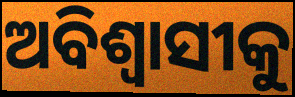
ଅବିଶ୍ୱାସୀକୁ